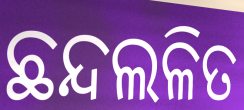
ଛନ୍ଦଲଳିତ